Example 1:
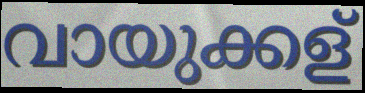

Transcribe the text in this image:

വായുക്കള്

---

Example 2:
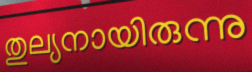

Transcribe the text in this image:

തുല്യനായിരുന്നു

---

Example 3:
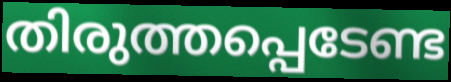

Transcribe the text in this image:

തിരുത്തപ്പെടേണ്ട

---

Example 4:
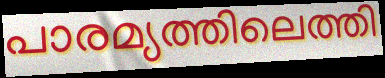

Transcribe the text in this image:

പാരമ്യത്തിലെത്തി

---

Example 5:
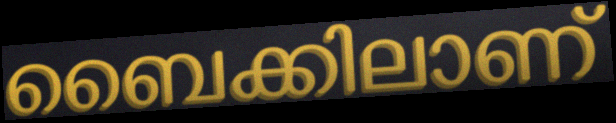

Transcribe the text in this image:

ബൈക്കിലാണ്